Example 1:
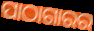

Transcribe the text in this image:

ପାଠାଗାରର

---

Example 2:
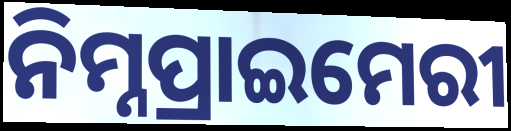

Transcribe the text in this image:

ନିମ୍ନପ୍ରାଇମେରୀ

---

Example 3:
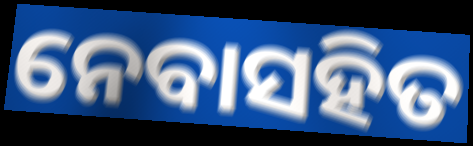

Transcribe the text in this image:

ନେବାସହିତ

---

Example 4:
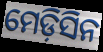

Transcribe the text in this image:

ମେଡ଼ିସିନ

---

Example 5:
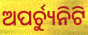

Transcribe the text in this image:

ଅପର୍ଚ୍ୟୁନିଟି